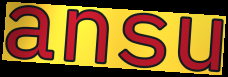
ansu